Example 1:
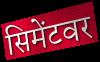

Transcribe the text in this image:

सिमेंटवर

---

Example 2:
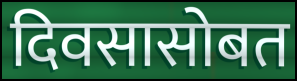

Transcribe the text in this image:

दिवसासोबत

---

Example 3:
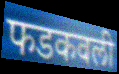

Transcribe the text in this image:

फडकवली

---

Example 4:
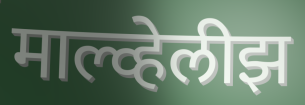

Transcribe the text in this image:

माल्व्हेलीझ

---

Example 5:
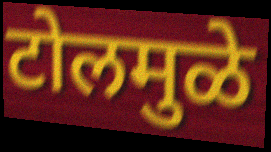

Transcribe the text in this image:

टोलमुळे